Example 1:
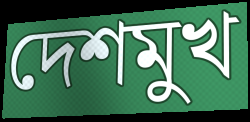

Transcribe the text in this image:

দেশমুখ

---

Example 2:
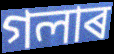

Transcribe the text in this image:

গলাৰ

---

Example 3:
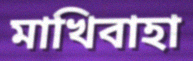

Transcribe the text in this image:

মাখিবাহা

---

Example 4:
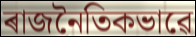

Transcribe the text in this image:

ৰাজনৈতিকভাৱে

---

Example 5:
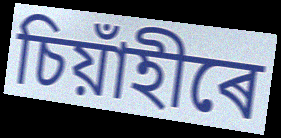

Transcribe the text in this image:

চিয়াঁহীৰে